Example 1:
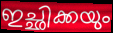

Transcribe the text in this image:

ഇച്ഛിക്കയും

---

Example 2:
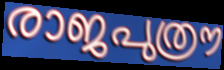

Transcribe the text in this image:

രാജപുത്രൗ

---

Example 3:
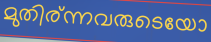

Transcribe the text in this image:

മുതിര്ന്നവരുടെയോ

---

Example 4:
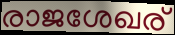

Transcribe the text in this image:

രാജശേഖര്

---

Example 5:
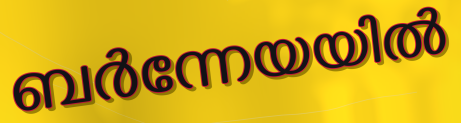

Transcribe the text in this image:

ബർന്നേയയിൽ